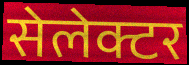
सेलेक्टर